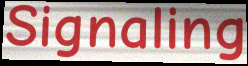
Signaling